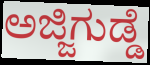
ಅಜ್ಜಿಗುಡ್ಡೆ